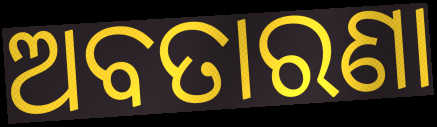
ଅବତାରଣା